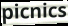
picnics